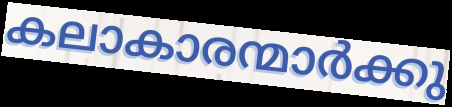
കലാകാരന്മാർക്കു